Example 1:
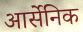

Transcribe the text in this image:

आर्सेनिक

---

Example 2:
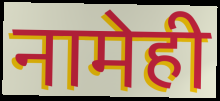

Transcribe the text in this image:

नामेही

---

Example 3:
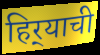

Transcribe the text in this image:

हिर्याची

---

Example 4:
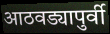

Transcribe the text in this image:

आठवड्यापुर्वी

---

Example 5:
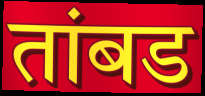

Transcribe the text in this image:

तांबड